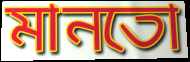
মানতো